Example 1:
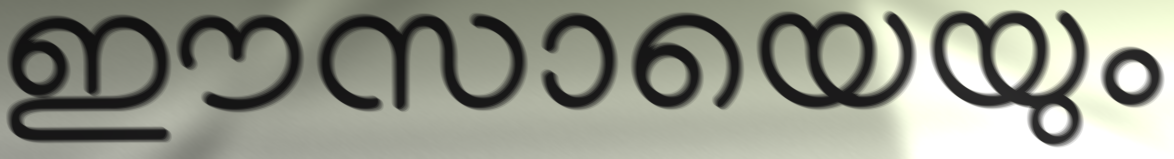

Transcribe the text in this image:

ഈസായെയും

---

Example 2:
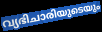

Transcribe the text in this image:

വ്യഭിചാരിയുടെയും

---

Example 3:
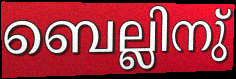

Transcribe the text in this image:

ബെല്ലിനു്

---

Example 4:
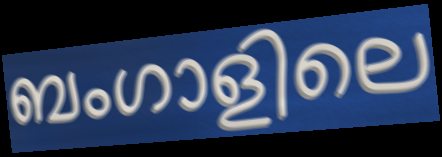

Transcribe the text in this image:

ബംഗാളിലെ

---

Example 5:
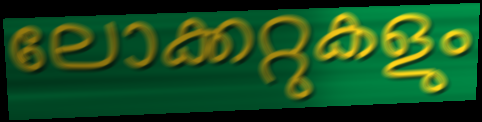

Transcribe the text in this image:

ലോക്കറ്റുകളും